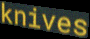
knives